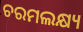
ଚରମଲକ୍ଷ୍ୟ